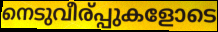
നെടുവീര്പ്പുകളോടെ